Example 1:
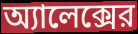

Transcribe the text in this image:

অ্যালেক্সের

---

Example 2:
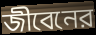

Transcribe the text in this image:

জীবেনের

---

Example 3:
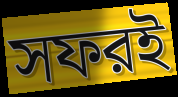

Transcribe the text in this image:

সফরই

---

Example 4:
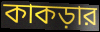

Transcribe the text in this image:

কাকড়ার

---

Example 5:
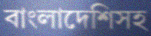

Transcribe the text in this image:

বাংলাদেশিসহ